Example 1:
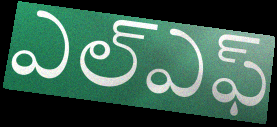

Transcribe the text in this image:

ఎల్ఎఫ్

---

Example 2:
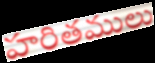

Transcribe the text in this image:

హరితములు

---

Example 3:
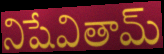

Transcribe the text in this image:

నిషేవితామ్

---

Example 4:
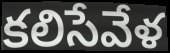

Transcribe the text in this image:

కలిసేవేళ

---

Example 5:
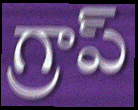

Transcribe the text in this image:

గ్రాప్